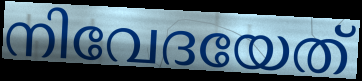
നിവേദയേത്